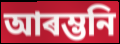
আৰম্ভনি